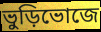
ভুড়িভোজে